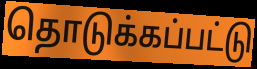
தொடுக்கப்பட்டு